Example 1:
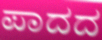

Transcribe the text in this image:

ಪಾದದ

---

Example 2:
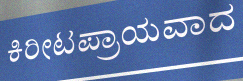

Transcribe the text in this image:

ಕಿರೀಟಪ್ರಾಯವಾದ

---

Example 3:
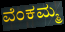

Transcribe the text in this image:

ವೆಂಕಮ್ಮ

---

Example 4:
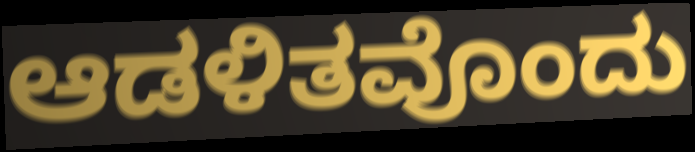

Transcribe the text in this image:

ಆಡಳಿತವೊಂದು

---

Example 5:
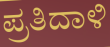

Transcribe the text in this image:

ಪ್ರತಿದಾಳಿ